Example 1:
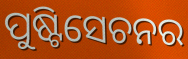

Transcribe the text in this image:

ପୁଷ୍ଟିସେଚନର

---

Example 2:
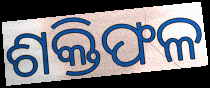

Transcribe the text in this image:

ଶକ୍ତିଫଳ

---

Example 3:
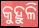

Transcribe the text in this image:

କୁହୁଳି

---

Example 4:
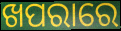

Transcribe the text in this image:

ଖପରାରେ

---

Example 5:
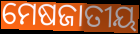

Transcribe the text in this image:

ମେଷଜାତୀୟ